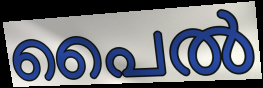
പൈൽ